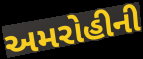
અમરોહીની